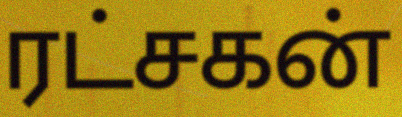
ரட்சகன்